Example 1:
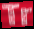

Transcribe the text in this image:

Tr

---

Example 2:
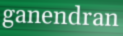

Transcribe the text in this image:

ganendran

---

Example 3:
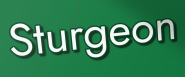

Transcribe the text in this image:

Sturgeon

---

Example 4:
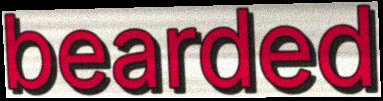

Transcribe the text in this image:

bearded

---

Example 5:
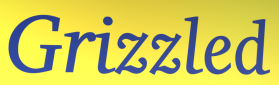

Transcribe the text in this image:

Grizzled